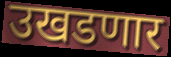
उखडणार